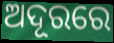
ଅଦୂରରେ